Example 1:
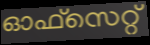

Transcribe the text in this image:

ഓഫ്സെറ്റ്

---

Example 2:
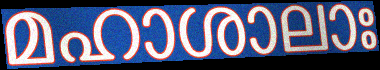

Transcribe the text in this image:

മഹാശാലാഃ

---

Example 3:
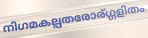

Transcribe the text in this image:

നിഗമകല്പതരോര്ഗ്ഗളിതം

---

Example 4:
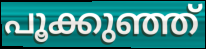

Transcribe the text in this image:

പൂക്കുഞ്ഞ്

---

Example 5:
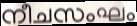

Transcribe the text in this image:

നീചസംഘം